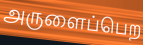
அருளைப்பெற